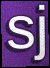
sj